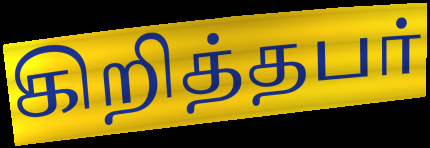
கிறித்தபர்